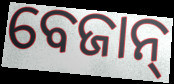
ବେଜାନ୍